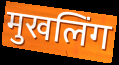
मुखलिंग